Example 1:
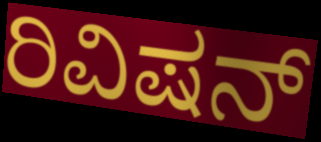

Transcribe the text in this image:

ರಿವಿಷನ್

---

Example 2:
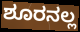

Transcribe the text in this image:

ಶೂರನಲ್ಲ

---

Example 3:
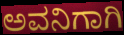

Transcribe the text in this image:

ಅವನಿಗಾಗಿ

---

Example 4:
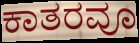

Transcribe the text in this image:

ಕಾತರವೂ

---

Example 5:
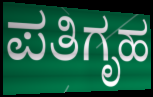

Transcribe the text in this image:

ಪತಿಗೃಹ